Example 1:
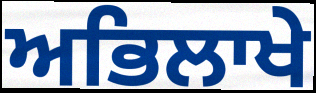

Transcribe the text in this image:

ਅਭਿਲਾਖੇ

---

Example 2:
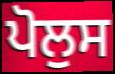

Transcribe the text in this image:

ਪੋਲੁਸ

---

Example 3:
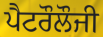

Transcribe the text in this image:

ਪੈਟਰੌਲੌਜੀ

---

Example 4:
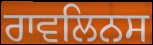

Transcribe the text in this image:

ਰਾਵਲਿਨਸ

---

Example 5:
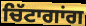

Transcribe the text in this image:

ਚਿੱਟਾਗਾਂਗ